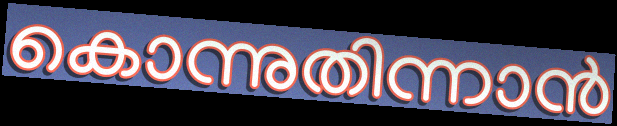
കൊന്നുതിന്നാൻ